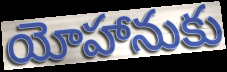
యోహానుకు